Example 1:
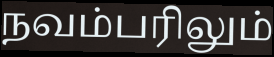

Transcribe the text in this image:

நவம்பரிலும்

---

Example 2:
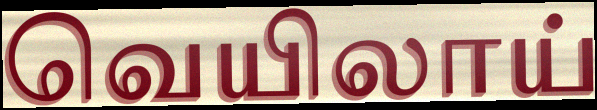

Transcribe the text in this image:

வெயிலாய்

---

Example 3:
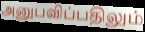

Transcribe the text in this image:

அனுபவிப்பதிலும்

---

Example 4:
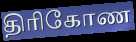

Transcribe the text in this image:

திரிகோண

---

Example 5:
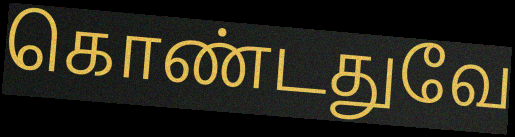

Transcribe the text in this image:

கொண்டதுவே